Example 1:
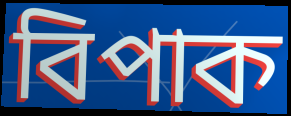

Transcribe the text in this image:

বিপাক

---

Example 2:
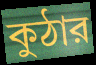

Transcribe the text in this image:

কুঠার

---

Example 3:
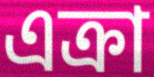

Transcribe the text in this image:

এক্রা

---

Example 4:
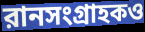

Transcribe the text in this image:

রানসংগ্রাহকও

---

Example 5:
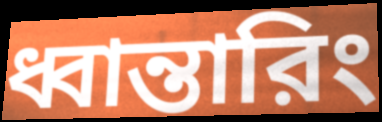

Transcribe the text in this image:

ধ্বান্তারিং